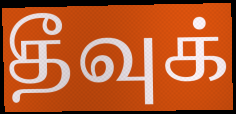
தீவுக்